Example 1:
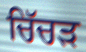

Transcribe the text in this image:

ਚਿੱਚੜ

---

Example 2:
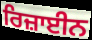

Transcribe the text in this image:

ਰਿਜ਼ਾਈਨ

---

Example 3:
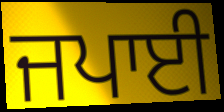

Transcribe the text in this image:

ਜਪਾਈ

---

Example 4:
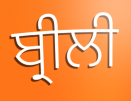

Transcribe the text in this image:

ਬ੍ਰੀਲੀ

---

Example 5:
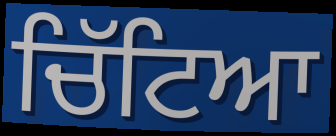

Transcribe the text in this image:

ਚਿੱਟਿਆ